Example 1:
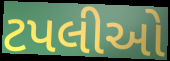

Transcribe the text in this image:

ટપલીઓ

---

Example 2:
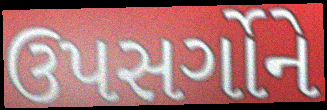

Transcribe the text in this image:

ઉપસર્ગોને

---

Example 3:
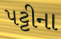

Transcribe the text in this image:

પટ્ટીના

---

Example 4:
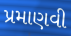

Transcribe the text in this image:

પ્રમાણવી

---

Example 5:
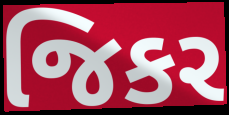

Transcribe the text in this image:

જિકર